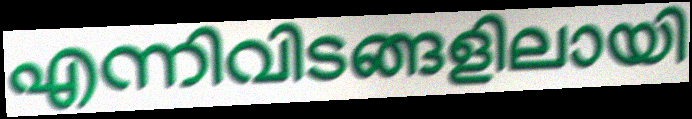
എന്നിവിടങ്ങളിലായി